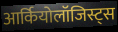
आर्कियोलॉजिस्ट्स